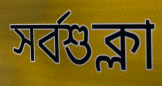
সর্বশুক্লা